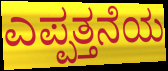
ಎಪ್ಪತ್ತನೆಯ